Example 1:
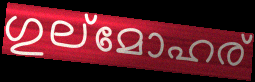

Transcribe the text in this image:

ഗുല്മോഹര്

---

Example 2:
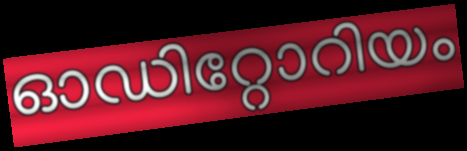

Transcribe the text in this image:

ഓഡിറ്റോറിയം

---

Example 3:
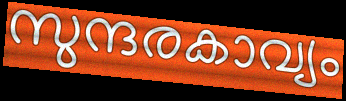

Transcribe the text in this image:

സുന്ദരകാവ്യം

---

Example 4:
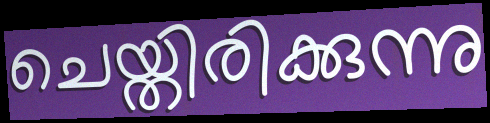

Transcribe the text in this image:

ചെയ്തിരിക്കുന്നു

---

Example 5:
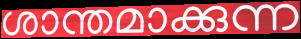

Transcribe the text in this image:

ശാന്തമാക്കുന്ന